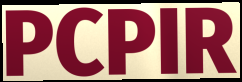
PCPIR